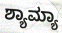
ಶ್ಯಾಮ್ಯಾ